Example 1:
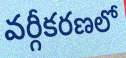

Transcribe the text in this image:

వర్గీకరణలో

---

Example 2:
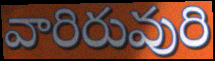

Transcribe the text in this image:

వారిరువురి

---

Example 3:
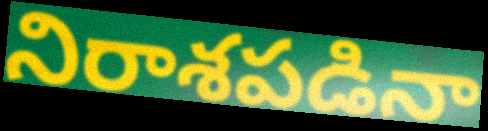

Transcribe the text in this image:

నిరాశపడినా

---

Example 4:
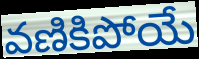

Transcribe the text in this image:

వణికిపోయే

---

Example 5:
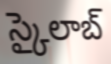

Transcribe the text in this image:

స్కైలాబ్